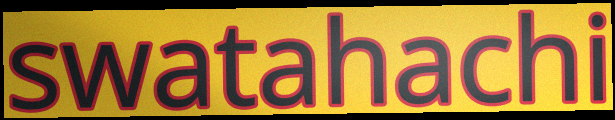
swatahachi